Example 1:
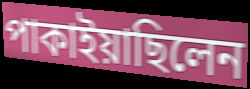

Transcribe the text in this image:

পাকাইয়াছিলেন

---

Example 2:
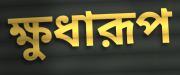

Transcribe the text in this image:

ক্ষুধারূপ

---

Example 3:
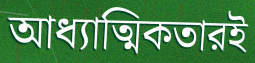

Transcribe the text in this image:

আধ্যাত্মিকতারই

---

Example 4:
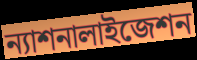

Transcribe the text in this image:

ন্যাশনালাইজেশন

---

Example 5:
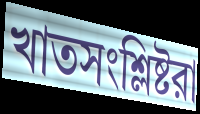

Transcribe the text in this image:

খাতসংশ্লিষ্টরা